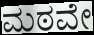
ಮಠವೇ